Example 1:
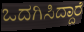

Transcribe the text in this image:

ಒದಗಿಸಿದ್ದಾರೆ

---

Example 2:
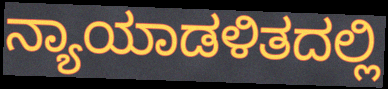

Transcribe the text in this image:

ನ್ಯಾಯಾಡಳಿತದಲ್ಲಿ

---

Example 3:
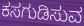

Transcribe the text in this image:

ಕಸಗುಡಿಸುವ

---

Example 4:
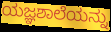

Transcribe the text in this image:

ಯಜ್ಞಶಾಲೆಯನ್ನು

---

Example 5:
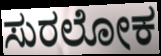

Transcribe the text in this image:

ಸುರಲೋಕ